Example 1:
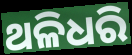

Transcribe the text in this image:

ଥଳିଧରି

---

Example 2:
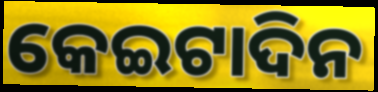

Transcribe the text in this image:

କେଇଟାଦିନ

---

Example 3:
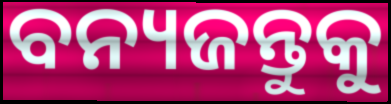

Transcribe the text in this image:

ବନ୍ୟଜନ୍ତୁକୁ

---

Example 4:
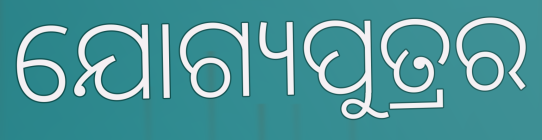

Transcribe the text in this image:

ଯୋଗ୍ୟପୁତ୍ରର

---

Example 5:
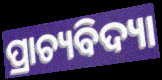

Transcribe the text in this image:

ପ୍ରାଚ୍ୟବିଦ୍ୟା